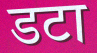
डटा